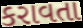
કરાવતા